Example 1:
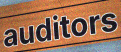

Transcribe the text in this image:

auditors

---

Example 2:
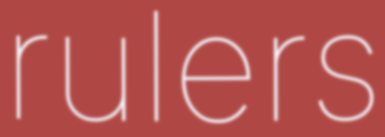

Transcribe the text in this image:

rulers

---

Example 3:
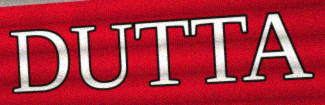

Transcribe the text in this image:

DUTTA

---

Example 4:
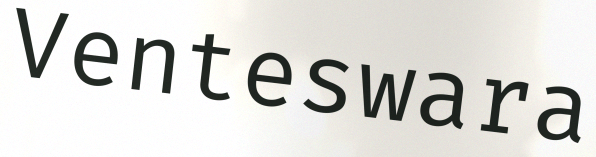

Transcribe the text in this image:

Venteswara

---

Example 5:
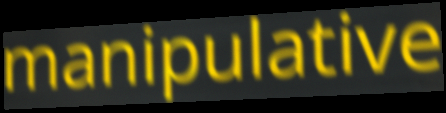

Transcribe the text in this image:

manipulative